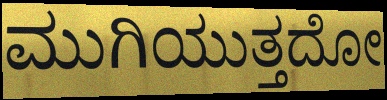
ಮುಗಿಯುತ್ತದೋ